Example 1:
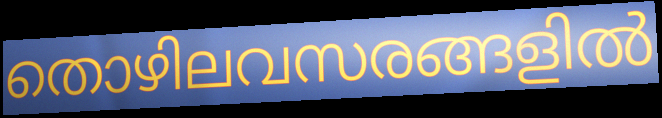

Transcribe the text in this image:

തൊഴിലവസരങ്ങളിൽ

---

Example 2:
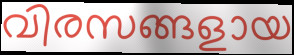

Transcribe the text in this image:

വിരസങ്ങളായ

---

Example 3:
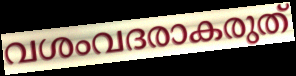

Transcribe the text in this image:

വശംവദരാകരുത്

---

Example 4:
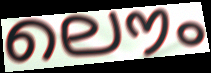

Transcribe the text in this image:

ലൌം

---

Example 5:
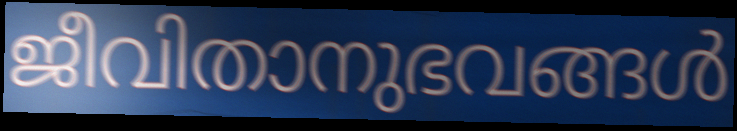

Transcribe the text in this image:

ജീവിതാനുഭവങ്ങൾ